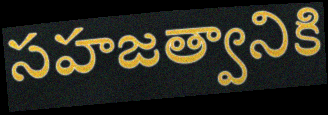
సహజత్వానికి